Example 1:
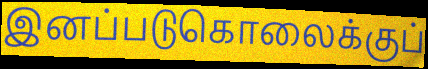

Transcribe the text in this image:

இனப்படுகொலைக்குப்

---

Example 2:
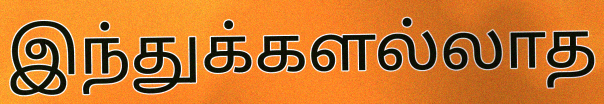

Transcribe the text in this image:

இந்துக்களல்லாத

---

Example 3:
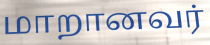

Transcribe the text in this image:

மாறானவர்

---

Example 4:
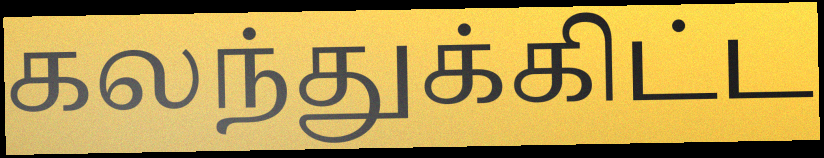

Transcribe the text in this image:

கலந்துக்கிட்ட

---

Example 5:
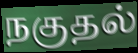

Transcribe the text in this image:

நகுதல்